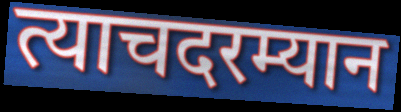
त्याचदरम्यान